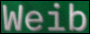
Weib